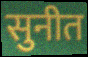
सुनीत